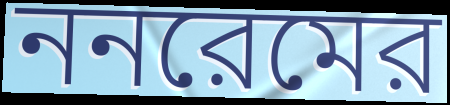
ননরেমের